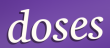
doses